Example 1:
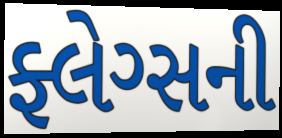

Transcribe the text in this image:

ફ્લેગ્સની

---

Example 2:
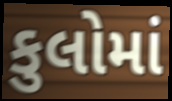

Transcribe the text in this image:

કુલોમાં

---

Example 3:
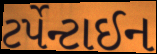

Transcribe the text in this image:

ટર્પેન્ટાઈન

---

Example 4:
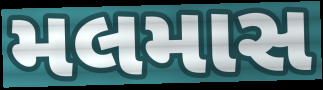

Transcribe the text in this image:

મલમાસ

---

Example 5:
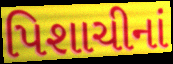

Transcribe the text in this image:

પિશાચીનાં